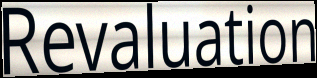
Revaluation